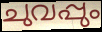
ചുവപ്പും